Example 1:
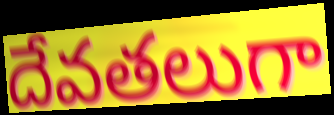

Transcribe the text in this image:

దేవతలుగా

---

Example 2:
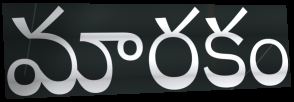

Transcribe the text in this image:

మారకం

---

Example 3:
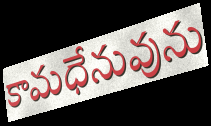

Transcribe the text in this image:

కామధేనువును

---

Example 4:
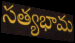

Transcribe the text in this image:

సత్యభామ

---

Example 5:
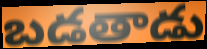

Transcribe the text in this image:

బడతాడు